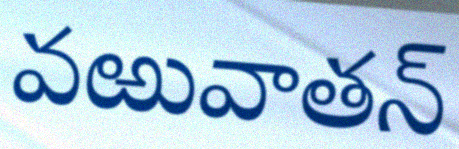
వఱువాతన్